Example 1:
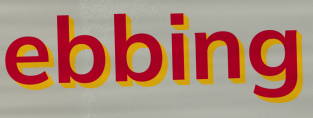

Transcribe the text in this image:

ebbing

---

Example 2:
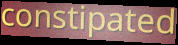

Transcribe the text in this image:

constipated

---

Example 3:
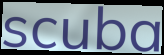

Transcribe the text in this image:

scuba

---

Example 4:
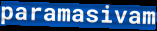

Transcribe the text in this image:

paramasivam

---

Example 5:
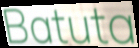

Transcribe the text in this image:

Batuta